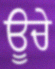
ਊਚੇ